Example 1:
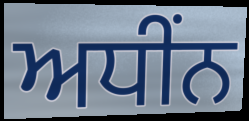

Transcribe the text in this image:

ਅਧੀਂਨ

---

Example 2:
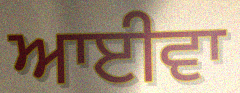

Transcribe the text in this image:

ਆਈਵਾ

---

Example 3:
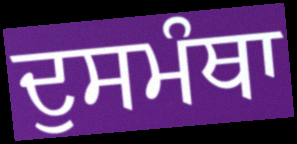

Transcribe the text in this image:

ਦੁਸਮੰਥਾ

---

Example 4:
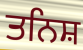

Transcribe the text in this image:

ਤਨਿਸ਼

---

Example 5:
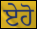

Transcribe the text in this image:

ਏਹੋ